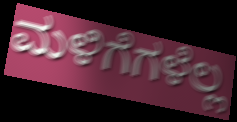
ಮಳಿಗೆಗಳೆಲ್ಲ